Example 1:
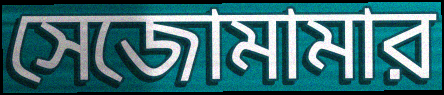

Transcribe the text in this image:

সেজোমামার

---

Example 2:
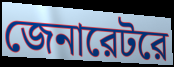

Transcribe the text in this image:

জেনারেটরে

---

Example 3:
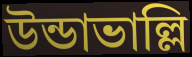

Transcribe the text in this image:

উন্ডাভাল্লি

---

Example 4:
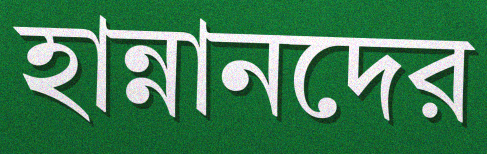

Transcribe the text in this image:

হান্নানদের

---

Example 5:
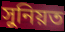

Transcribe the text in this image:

সুনিয়ত